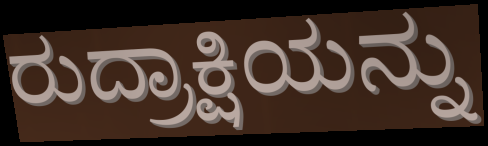
ರುದ್ರಾಕ್ಷಿಯನ್ನು